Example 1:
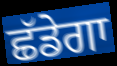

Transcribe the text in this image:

ਛੱਡੇਗਾ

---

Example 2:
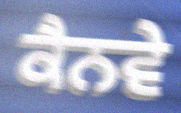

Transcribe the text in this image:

ਕੈਨਵੇ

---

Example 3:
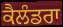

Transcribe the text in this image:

ਕੈਲੰਡਰਾ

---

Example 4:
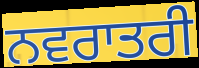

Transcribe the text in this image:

ਨਵਰਾਤਰੀ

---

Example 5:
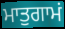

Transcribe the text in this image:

ਮਾਤੁਗਾਮਂ